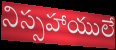
నిస్సహాయులే